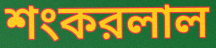
শংকরলাল